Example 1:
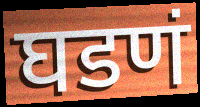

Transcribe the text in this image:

घडणं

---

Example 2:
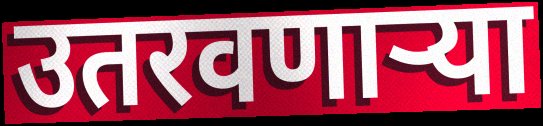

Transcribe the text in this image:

उतरवणाऱ्या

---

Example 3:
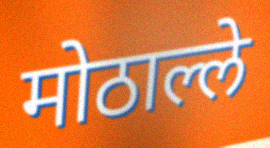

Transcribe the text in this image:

मोठाल्ले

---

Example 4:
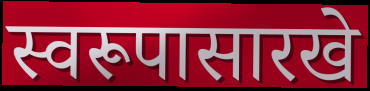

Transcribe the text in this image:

स्वरूपासारखे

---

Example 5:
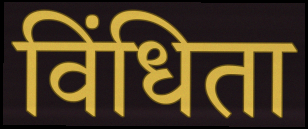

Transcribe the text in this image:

विंधिता